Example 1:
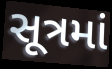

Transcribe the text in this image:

સૂત્રમાં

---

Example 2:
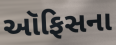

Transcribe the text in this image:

ઑફિસના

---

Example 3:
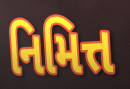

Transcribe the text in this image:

નિમિત્ત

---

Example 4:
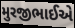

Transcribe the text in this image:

મુરજીભાઈએ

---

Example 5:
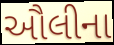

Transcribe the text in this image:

ઔલીના